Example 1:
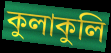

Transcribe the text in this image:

কুলাকুলি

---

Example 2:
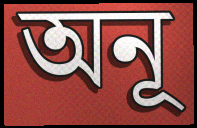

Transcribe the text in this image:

অনূ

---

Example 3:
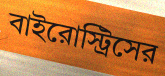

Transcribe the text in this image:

বাইরোস্ট্রিসের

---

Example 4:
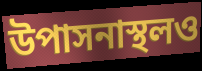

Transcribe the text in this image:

উপাসনাস্থলও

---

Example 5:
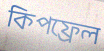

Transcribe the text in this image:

কিপফ্রেল